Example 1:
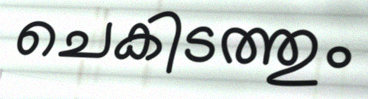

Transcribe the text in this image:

ചെകിടത്തും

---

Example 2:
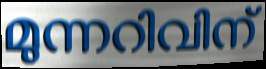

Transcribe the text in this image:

മുന്നറിവിന്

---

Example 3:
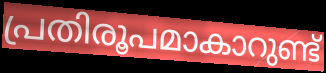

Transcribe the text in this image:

പ്രതിരൂപമാകാറുണ്ട്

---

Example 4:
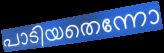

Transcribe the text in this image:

പാടിയതെന്നോ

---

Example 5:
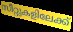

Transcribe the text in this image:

സീറ്റുകളിലേക്ക്